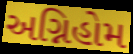
અગ્નિહોમ